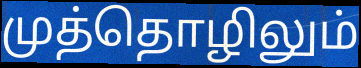
முத்தொழிலும்